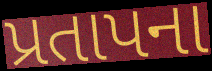
પ્રતાપના